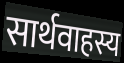
सार्थवाहस्य